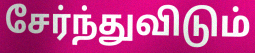
சேர்ந்துவிடும்